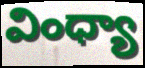
వింధ్యా